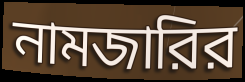
নামজারির